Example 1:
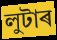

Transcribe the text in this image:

লুটাৰ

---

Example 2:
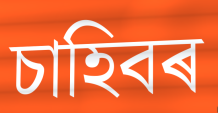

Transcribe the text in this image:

চাহিবৰ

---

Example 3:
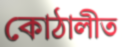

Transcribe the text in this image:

কোঠালীত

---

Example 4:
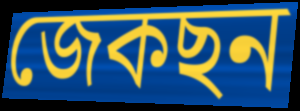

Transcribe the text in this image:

জেকছন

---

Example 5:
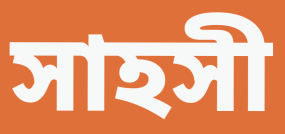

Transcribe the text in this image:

সাহসী